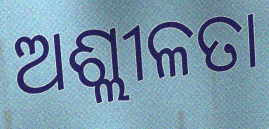
ଅଶ୍ଲୀଳତା